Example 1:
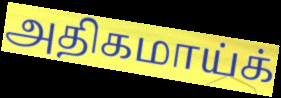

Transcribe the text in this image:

அதிகமாய்க்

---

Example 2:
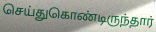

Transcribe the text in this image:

செய்துகொண்டிருந்தார்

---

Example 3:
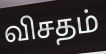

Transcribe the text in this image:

விசதம்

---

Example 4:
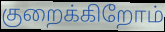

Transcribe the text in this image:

குறைக்கிறோம்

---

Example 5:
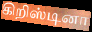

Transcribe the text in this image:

கிறிஸ்டினா